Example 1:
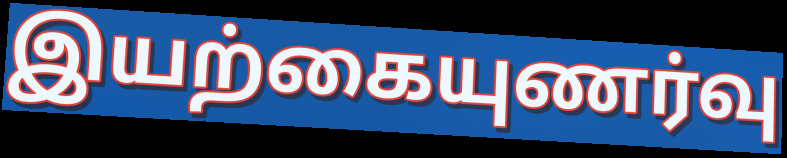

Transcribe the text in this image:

இயற்கையுணர்வு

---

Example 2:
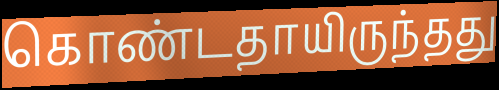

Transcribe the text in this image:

கொண்டதாயிருந்தது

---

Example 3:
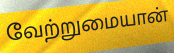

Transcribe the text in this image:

வேற்றுமையான்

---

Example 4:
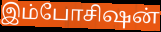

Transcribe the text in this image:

இம்போசிஷன்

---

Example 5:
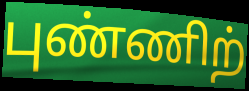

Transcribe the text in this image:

புண்ணிற்